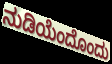
ನುಡಿಯೆಂದೊಂದು